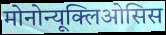
मोनोन्यूक्लिओसिस